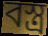
বস্ত্ৰ